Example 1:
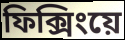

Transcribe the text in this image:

ফিক্সিংয়ে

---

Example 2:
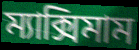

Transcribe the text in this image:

ম্যাক্সিমাম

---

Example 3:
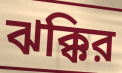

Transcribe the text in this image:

ঝক্কির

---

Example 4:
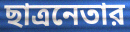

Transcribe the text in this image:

ছাত্রনেতার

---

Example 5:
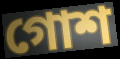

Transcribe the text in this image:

গোশ